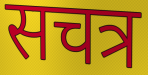
सचत्र